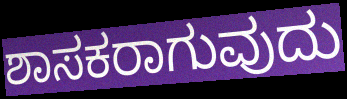
ಶಾಸಕರಾಗುವುದು